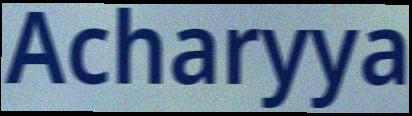
Acharyya